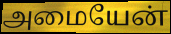
அமையேன்